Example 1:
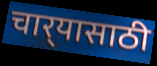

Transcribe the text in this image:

चार्‍यासाठी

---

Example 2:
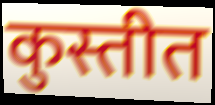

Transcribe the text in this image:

कुस्तीत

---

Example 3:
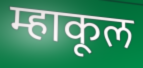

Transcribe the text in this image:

म्हाकूल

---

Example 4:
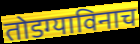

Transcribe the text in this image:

तोडग्याविनाच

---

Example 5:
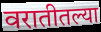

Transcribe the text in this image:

वरातीतल्या